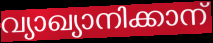
വ്യാഖ്യാനിക്കാന്